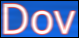
Dov